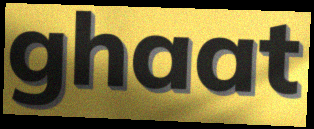
ghaat